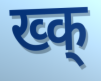
ख्क्